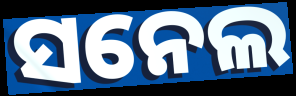
ସନେଲ